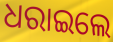
ଧରାଇଲେ